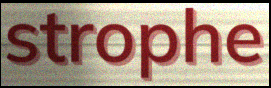
strophe